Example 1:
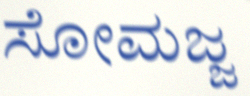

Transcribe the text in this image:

ಸೋಮಜ್ಜ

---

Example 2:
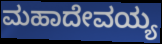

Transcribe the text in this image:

ಮಹಾದೇವಯ್ಯ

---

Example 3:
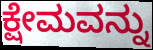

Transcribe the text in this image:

ಕ್ಷೇಮವನ್ನು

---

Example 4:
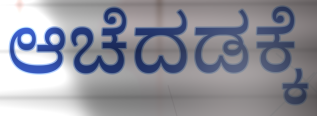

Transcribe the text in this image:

ಆಚೆದಡಕ್ಕೆ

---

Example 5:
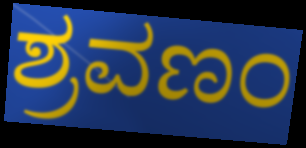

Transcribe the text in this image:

ಶ್ರವಣಂ